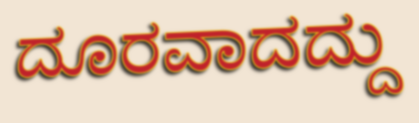
ದೂರವಾದದ್ದು